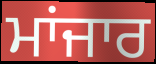
ਮਾਂਜਾਰ